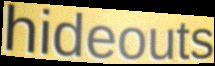
hideouts